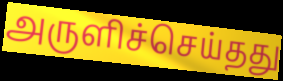
அருளிச்செய்தது